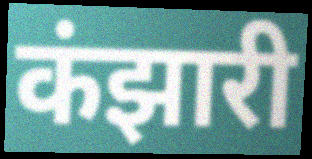
कंझारी